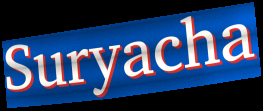
Suryacha